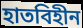
হাতবিহীন